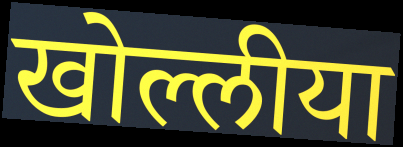
खोल्लीया